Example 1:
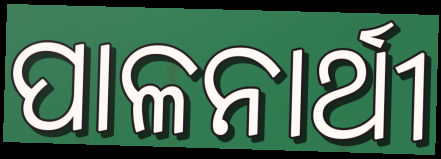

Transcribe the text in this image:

ପାଳନାର୍ଥୀ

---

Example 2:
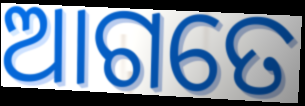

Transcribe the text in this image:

ଆଗତେ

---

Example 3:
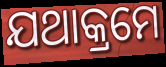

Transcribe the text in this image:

ଯଥାକ୍ରମେ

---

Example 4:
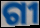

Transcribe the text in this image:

ଗୀ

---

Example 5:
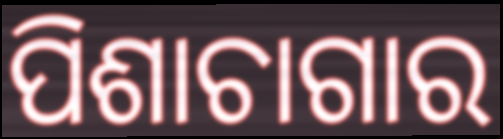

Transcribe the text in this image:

ପିଶାଚାଗାର